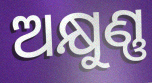
ଅକ୍ଷୁଣ୍ଣ